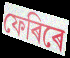
ফেৰিৰে